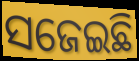
ସଜେଇଛି